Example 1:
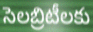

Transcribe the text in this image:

సెలబ్రిటీలకు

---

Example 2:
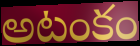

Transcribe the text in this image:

అటంకం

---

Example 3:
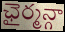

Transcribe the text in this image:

ఛైర్మన్గా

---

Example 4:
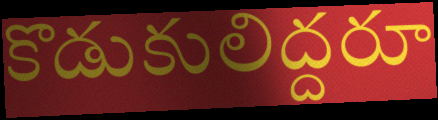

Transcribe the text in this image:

కొడుకులిద్దరూ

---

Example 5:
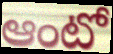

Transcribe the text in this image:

ఆంటో